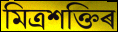
মিত্ৰশক্তিৰ